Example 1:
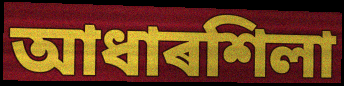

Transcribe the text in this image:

আধাৰশিলা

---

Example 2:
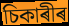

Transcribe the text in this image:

চিকাৰীৰ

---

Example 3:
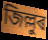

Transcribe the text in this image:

জিল্লুৰ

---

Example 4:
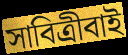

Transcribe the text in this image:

সাবিত্ৰীবাই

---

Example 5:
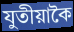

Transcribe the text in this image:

যুতীয়াকৈ